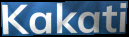
Kakati